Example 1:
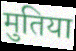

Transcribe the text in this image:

मुतिया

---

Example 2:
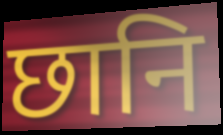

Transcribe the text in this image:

छानि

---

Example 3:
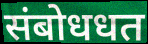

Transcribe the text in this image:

संबोधधत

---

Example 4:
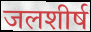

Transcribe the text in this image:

जलशीर्ष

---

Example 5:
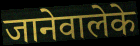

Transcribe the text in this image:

जानेवालेके